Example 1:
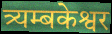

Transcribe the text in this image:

त्र्यम्बकेश्वर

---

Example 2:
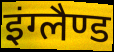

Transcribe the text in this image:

इंग्लैण्ड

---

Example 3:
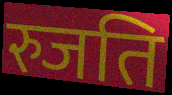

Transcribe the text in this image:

रुजति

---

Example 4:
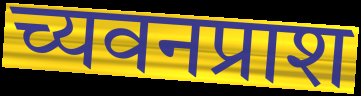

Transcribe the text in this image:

च्‍यवनप्राश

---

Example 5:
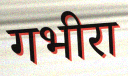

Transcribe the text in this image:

गभीरा